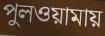
পুলওয়ামায়